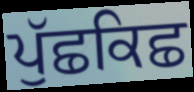
ਪੁੱਛਕਿਛ